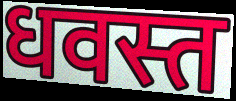
धवस्त